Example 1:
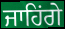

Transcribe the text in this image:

ਜਾਹਿਂਗੇ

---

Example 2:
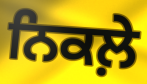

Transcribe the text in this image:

ਨਿਕਲ਼ੇ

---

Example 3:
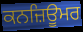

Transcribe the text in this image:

ਕਨਜ਼ਿਊਮਰ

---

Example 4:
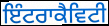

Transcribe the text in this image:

ਇੰਟਰਾਕੈਵਿਟੀ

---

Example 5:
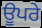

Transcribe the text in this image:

ਊਪਰੇ